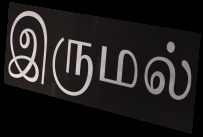
இருமல்